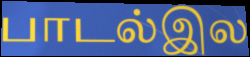
பாடல்இல